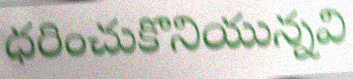
ధరించుకొనియున్నవి